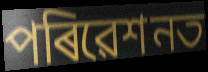
পৰিৱেশনত